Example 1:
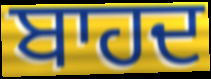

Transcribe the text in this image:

ਬਾਹਦ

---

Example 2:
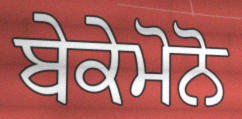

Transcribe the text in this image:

ਬੇਕੇਮੋਨੋ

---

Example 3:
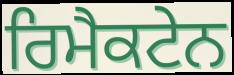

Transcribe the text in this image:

ਰਿਮੈਕਟੇਨ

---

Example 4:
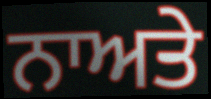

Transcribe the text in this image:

ਨਾਅਤੇ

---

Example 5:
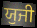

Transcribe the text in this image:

ਯੁਜੀ